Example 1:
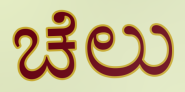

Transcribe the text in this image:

ಚೆಲು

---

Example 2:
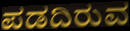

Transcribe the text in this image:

ಪಡದಿರುವ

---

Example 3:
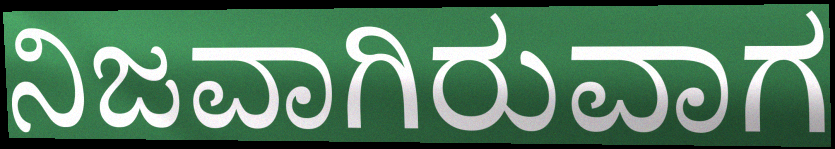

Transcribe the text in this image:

ನಿಜವಾಗಿರುವಾಗ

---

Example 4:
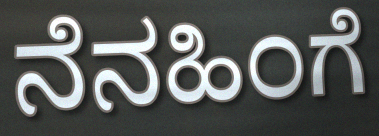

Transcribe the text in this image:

ನೆನಹಿಂಗೆ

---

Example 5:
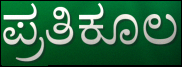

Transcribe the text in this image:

ಪ್ರತಿಕೂಲ